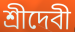
শ্রীদেবী